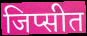
जिप्सीत